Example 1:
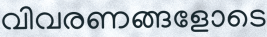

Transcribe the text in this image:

വിവരണങ്ങളോടെ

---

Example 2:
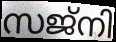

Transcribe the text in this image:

സജ്നി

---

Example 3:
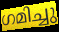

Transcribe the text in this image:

ഗമിച്ചു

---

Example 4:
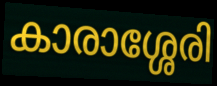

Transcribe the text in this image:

കാരാശ്ശേരി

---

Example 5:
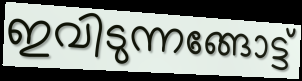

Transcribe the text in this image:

ഇവിടുന്നങ്ങോട്ട്